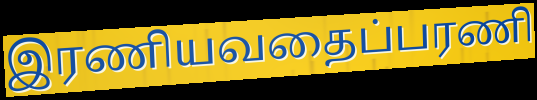
இரணியவதைப்பரணி